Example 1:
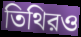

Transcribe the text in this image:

তিথিরও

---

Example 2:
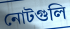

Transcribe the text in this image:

নোটগুলি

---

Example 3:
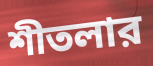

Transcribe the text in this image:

শীতলার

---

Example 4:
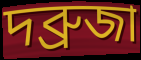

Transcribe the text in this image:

দব্রুজা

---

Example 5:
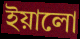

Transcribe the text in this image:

ইয়ালো